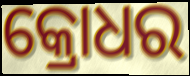
କ୍ରୋଧର